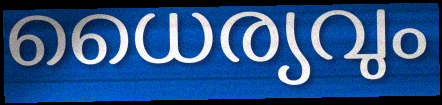
ധൈര്യവും